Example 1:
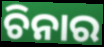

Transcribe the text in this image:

ଚିନାର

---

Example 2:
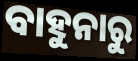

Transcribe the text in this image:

ବାହୁନାରୁ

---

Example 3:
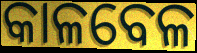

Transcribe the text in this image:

କାଳବେଳ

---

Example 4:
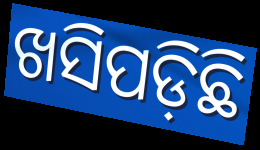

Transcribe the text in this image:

ଖସିପଡ଼ିଛି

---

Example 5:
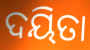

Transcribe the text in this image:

ଦୟିତା